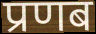
प्रणब